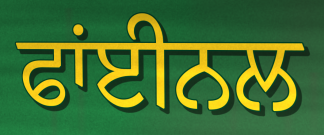
ਫਾਂਈਨਲ